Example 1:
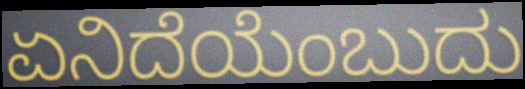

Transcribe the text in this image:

ಏನಿದೆಯೆಂಬುದು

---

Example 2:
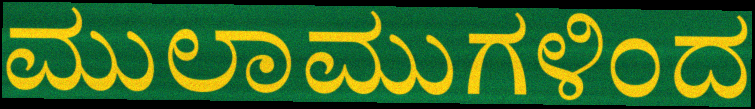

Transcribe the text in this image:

ಮುಲಾಮುಗಳಿಂದ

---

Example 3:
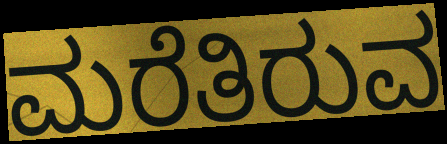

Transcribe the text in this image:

ಮರೆತಿರುವ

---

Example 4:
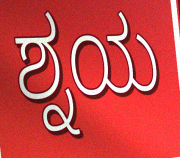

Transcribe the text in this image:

ಶ್ನಯ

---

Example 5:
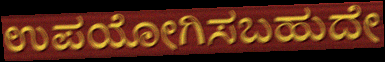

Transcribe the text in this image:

ಉಪಯೋಗಿಸಬಹುದೇ